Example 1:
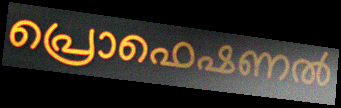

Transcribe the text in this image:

പ്രൊഫെഷണൽ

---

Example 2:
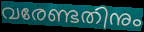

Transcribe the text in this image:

വരേണ്ടതിനും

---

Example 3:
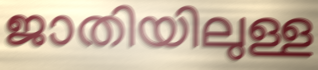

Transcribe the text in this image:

ജാതിയിലുള്ള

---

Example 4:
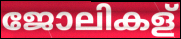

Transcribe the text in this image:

ജോലികള്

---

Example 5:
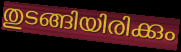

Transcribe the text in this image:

തുടങ്ങിയിരിക്കും